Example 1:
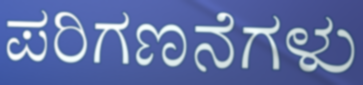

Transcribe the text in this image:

ಪರಿಗಣನೆಗಳು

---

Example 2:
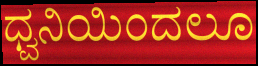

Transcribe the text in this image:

ಧ್ವನಿಯಿಂದಲೂ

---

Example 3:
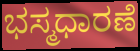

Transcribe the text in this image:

ಭಸ್ಮಧಾರಣೆ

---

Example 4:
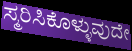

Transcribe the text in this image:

ಸ್ಮರಿಸಿಕೊಳ್ಳುವುದೇ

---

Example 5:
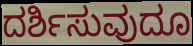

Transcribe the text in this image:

ದರ್ಶಿಸುವುದೂ